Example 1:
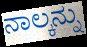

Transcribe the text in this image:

ನಾಲ್ಕನ್ನು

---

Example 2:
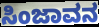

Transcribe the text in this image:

ಸಿಂಜಾವನ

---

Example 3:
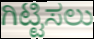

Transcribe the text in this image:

ಗಿಟ್ಟಿಸಲು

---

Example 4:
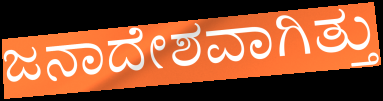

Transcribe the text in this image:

ಜನಾದೇಶವಾಗಿತ್ತು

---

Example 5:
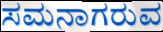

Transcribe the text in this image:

ಸಮನಾಗರುವ